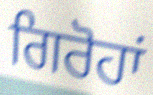
ਗਿਰੋਹਾਂ